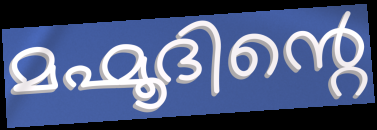
മഹ്മൂദിന്റെ